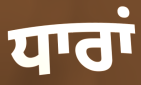
ਧਾਰਾਂ